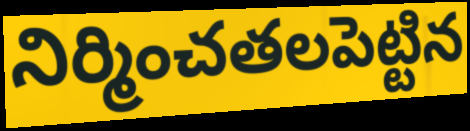
నిర్మించతలపెట్టిన